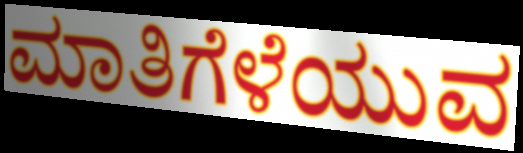
ಮಾತಿಗೆಳೆಯುವ